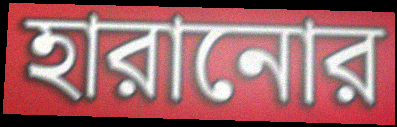
হারানোর